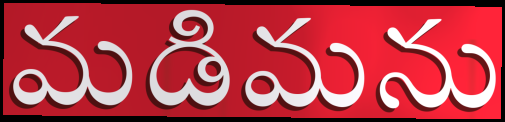
మడిమను